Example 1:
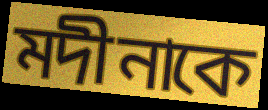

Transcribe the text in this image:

মদীনাকে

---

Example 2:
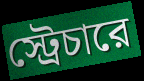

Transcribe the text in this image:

স্ট্রেচারে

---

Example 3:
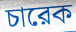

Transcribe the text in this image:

চারেক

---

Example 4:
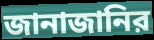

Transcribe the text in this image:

জানাজানির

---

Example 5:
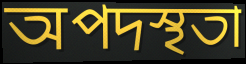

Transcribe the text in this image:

অপদস্থতা